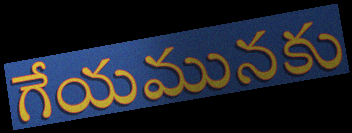
గేయమునకు